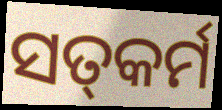
ସତ୍‍କର୍ମ